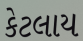
કેટલાય